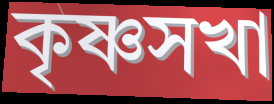
কৃষ্ণসখা